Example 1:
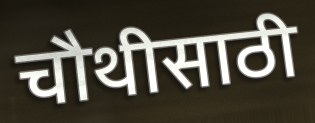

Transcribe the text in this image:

चौथीसाठी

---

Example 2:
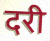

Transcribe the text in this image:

दरी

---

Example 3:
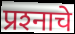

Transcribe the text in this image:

प्रश्‍नाचे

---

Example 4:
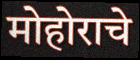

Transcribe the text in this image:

मोहोराचे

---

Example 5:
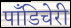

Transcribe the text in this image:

पॉंडिचेरी